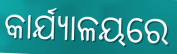
କାର୍ଯ୍ୟାଳୟରେ